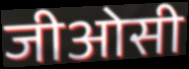
जीओसी